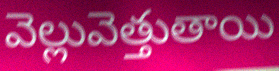
వెల్లువెత్తుతాయి